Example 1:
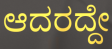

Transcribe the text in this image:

ಆದರದ್ದೇ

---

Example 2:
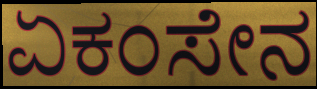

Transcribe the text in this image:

ಏಕಂಸೇನ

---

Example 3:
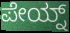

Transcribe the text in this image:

ಪೇಯ್ನ್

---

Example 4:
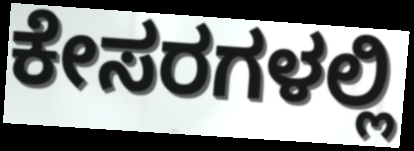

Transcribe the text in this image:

ಕೇಸರಗಳಲ್ಲಿ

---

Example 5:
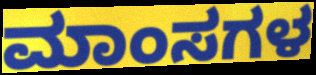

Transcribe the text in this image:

ಮಾಂಸಗಳ